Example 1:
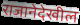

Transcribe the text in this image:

राजानेदेखील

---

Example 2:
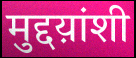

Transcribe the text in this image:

मुद्दय़ांशी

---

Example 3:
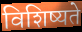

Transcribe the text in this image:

विशिष्यते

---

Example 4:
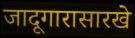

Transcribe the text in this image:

जादूगारासारखे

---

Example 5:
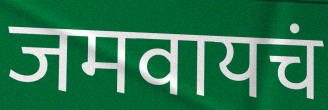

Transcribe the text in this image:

जमवायचं